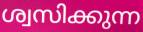
ശ്വസിക്കുന്ന